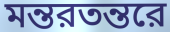
মন্তরতন্তরে